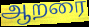
ஆறரை